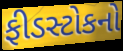
ફીડસ્ટોકનો